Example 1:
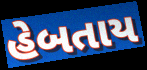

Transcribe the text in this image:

હેબતાય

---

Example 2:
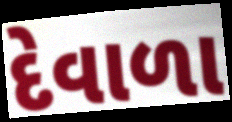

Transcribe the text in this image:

દેવાળા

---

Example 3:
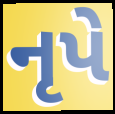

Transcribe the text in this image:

નૃપે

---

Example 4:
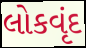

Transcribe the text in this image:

લોકવૃંદ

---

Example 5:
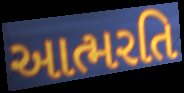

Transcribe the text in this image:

આત્મરતિ